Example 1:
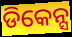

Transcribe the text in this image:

ଡିକେନ୍ସ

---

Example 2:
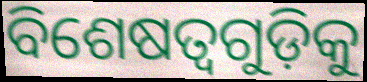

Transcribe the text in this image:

ବିଶେଷତ୍ୱଗୁଡ଼ିକୁ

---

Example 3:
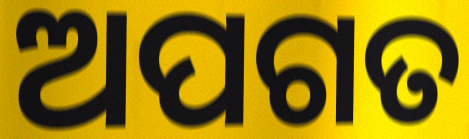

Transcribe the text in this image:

ଅପଗତ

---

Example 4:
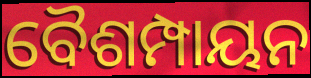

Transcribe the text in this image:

ବୈଶମ୍ପାୟନ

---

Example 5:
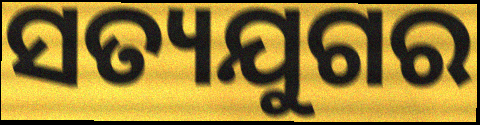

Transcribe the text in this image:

ସତ୍ୟଯୁଗର